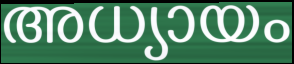
അധ്യായം